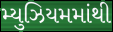
મ્યુઝિયમમાંથી